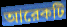
আরেকটি